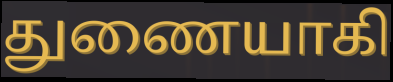
துணையாகி